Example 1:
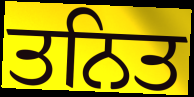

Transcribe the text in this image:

ਤਨਿਤ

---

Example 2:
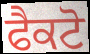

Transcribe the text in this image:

ਫੈਕਟੋ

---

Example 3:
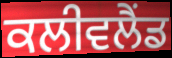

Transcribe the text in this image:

ਕਲੀਵਲੈਂਡ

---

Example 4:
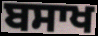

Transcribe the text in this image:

ਬਸਾਖ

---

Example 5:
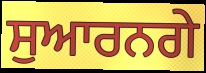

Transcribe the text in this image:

ਸੁਆਰਨਗੇ